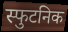
स्फुटनिक